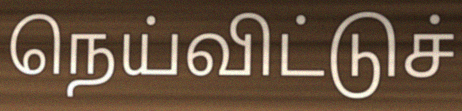
நெய்விட்டுச்